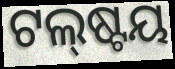
ଟଲ୍‌ଷ୍ଟୟ